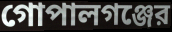
গোপালগঞ্জের